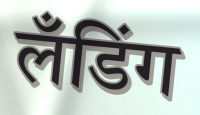
लँडिंग